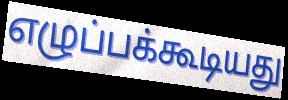
எழுப்பக்கூடியது